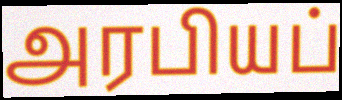
அரபியப்